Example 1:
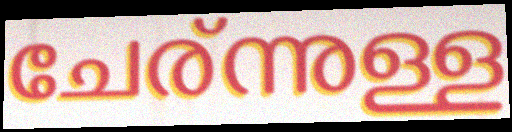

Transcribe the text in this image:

ചേര്ന്നുള്ള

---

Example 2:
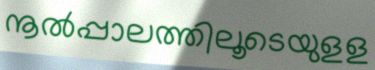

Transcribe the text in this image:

നൂൽപ്പാലത്തിലൂടെയുളള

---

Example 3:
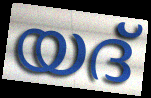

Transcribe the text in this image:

യദ്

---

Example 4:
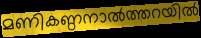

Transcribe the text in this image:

മണികണ്ഠനാൽത്തറയിൽ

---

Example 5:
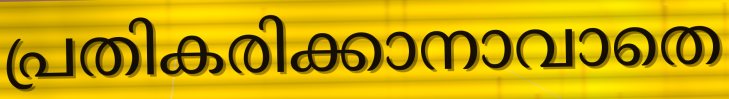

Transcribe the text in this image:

പ്രതികരിക്കാനാവാതെ